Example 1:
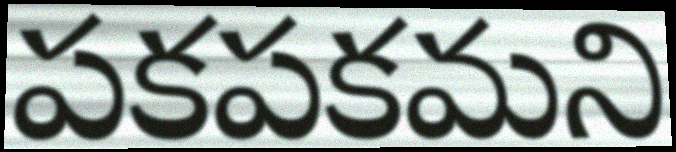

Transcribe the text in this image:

పకపకమని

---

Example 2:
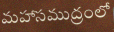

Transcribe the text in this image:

మహాసముద్రంలో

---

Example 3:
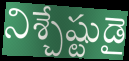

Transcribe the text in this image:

నిశ్చేష్టుడై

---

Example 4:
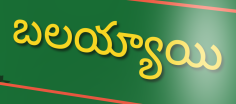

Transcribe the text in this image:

బలయ్యాయి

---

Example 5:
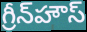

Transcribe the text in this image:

గ్రీన్‌హౌస్